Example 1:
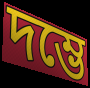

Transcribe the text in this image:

দম্ভে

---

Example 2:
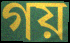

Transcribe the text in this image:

গয়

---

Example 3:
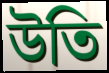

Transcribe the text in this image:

উতি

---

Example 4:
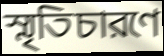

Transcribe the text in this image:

স্মৃতিচারণে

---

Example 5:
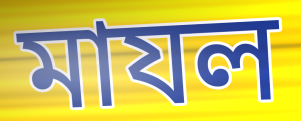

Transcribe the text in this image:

মাযল